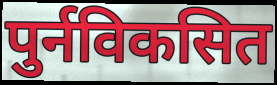
पुर्नविकसित